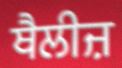
ਥੈਲੀਜ਼